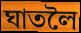
ঘাতলৈ